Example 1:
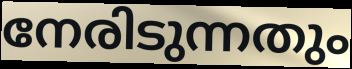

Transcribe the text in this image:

നേരിടുന്നതും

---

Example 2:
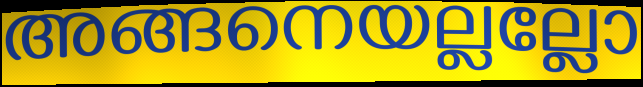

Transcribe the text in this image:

അങ്ങനെയല്ലല്ലോ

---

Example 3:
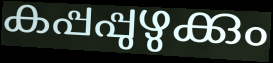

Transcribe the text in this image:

കപ്പപ്പുഴുക്കും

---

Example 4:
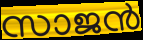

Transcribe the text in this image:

സാജൻ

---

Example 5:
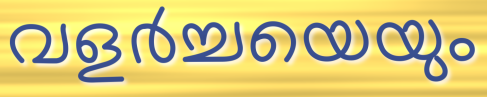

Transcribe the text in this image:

വളർച്ചയെയും